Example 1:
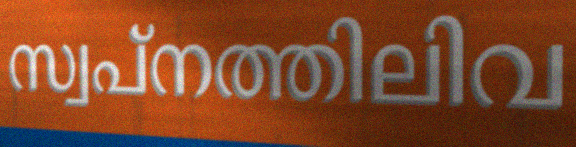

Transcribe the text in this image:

സ്വപ്നത്തിലിവ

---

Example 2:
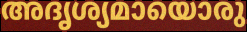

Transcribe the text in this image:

അദൃശ്യമായൊരു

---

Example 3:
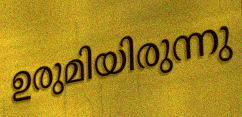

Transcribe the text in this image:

ഉരുമിയിരുന്നു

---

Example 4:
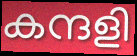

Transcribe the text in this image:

കന്ദളി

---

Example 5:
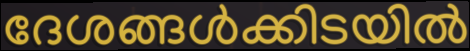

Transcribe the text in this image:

ദേശങ്ങൾക്കിടയിൽ